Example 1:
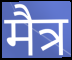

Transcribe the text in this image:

मैत्र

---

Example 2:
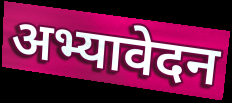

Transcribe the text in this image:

अभ्यावेदन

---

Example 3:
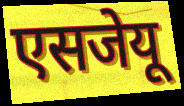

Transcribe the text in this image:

एसजेयू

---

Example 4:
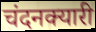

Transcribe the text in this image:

चंदनक्यारी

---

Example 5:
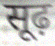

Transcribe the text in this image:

सूढ़